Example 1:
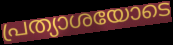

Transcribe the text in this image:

പ്രത്യാശയോടെ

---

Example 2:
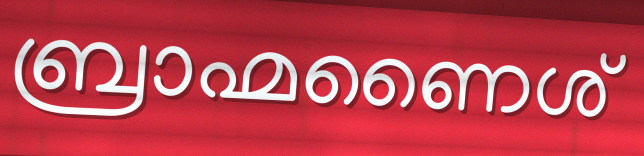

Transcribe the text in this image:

ബ്രാഹ്മണൈശ്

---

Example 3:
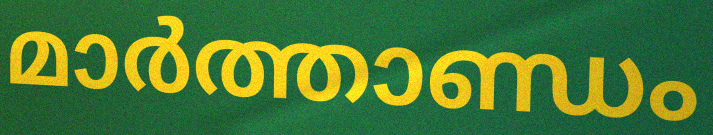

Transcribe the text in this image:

മാർത്താണ്ഡം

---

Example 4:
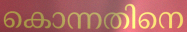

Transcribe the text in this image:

കൊന്നതിനെ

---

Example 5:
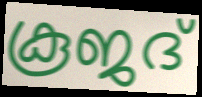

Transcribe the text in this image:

കൂജദ്